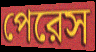
পেরেস